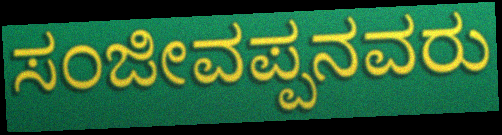
ಸಂಜೀವಪ್ಪನವರು